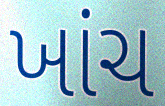
ખાંચ